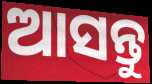
ଆସନ୍ତୁ